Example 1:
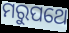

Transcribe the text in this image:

ମରୁପଥେ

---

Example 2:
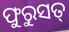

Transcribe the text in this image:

ଫୁରୁସତ୍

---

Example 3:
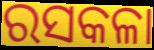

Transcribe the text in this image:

ରସକଳା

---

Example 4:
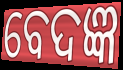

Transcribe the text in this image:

ବେଦଜ୍ଞ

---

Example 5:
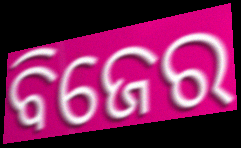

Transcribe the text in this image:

ବିଜେର